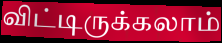
விட்டிருக்கலாம்